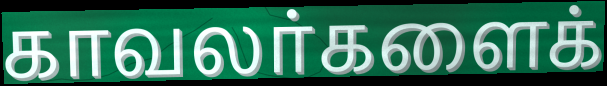
காவலர்களைக்